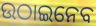
ଉଠାଇନେବ